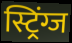
स्ट्रिंग्ज